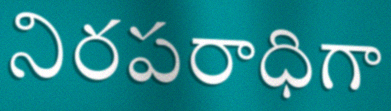
నిరపరాధిగా